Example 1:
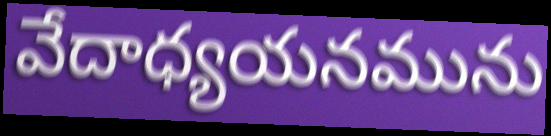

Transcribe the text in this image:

వేదాధ్యయనమును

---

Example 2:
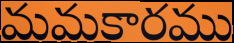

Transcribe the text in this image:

మమకారము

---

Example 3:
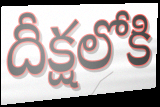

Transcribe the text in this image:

దీక్షలోకి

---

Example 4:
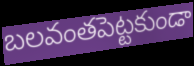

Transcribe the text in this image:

బలవంతపెట్టకుండా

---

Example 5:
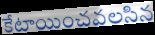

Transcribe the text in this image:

కేటాయించవలసిన